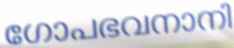
ഗോപഭവനാനി